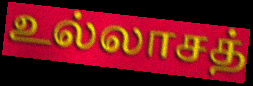
உல்லாசத்